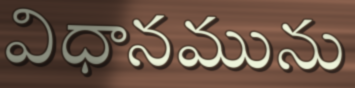
విధానమును